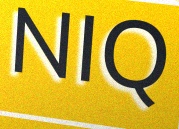
NIQ